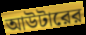
আউটারের